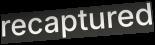
recaptured